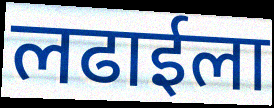
लढाईला